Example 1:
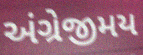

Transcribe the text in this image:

અંગ્રેજીમય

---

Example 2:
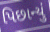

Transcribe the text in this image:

પિછાન્યું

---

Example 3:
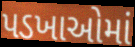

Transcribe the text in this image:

પડખાઓમાં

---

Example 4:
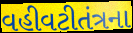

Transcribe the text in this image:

વહીવટીતંત્રના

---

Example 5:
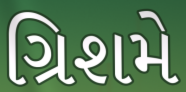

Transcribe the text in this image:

ગ્રિશમે